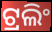
ଟ୍ରଲିଂ